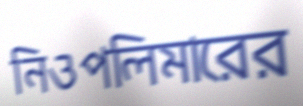
নিওপলিমারের